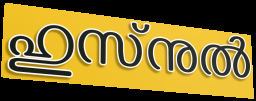
ഹുസ്നുൽ